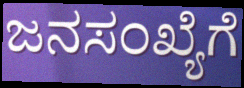
ಜನಸಂಖ್ಯೆಗೆ